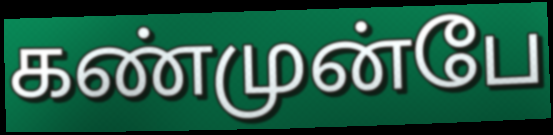
கண்முன்பே